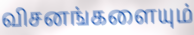
விசனங்களையும்